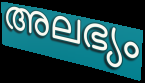
അലഭ്യം